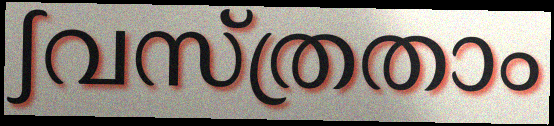
ഽവസ്ത്രതാം